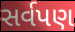
સર્વપણ